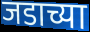
जडाच्या